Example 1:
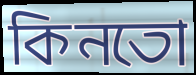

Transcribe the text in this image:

কিনতো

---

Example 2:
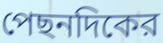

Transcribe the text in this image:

পেছনদিকের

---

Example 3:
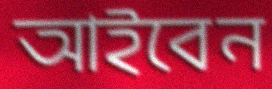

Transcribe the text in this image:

আইবেন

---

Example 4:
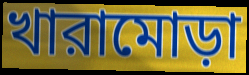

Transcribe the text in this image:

খারামোড়া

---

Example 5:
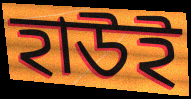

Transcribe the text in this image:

হাউই